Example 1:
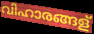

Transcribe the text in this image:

വിഹാരങ്ങള്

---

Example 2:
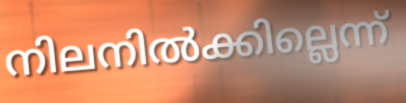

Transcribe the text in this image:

നിലനിൽക്കില്ലെന്ന്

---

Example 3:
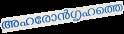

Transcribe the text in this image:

അഹരോൻഗൃഹത്തെ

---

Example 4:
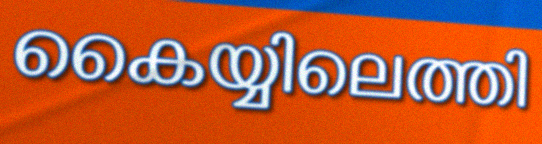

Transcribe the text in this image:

കൈയ്യിലെത്തി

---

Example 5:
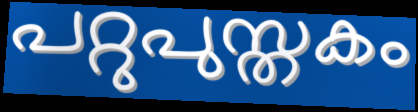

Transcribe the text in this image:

പറ്റുപുസ്തകം